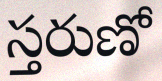
స్తరుణో